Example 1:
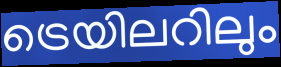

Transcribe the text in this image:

ട്രെയിലറിലും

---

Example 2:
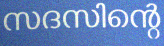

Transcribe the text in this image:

സദസിന്റെ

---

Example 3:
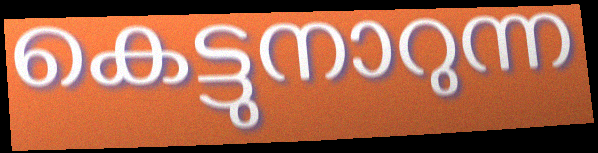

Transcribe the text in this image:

കെട്ടുനാറുന്ന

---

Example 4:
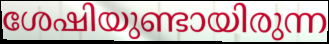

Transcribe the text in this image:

ശേഷിയുണ്ടായിരുന്ന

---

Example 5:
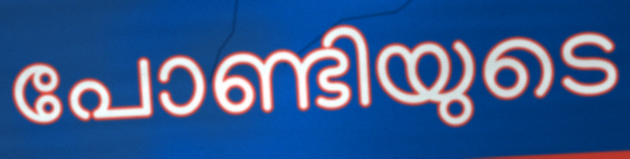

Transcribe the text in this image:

പോണ്ടിയുടെ